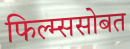
फिल्म्ससोबत